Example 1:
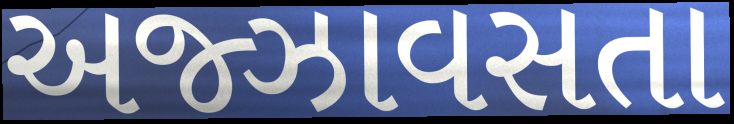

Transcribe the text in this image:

અજ્ઝાવસતા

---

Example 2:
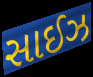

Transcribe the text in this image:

સાઈઝ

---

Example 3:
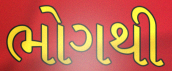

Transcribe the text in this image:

ભોગથી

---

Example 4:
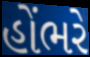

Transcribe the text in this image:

હોંભરે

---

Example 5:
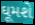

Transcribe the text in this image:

ઘૂમશે